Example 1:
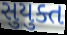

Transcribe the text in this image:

સુયુક્ત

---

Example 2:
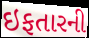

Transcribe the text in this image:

ઇફતારની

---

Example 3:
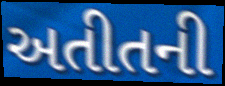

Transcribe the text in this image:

અતીતની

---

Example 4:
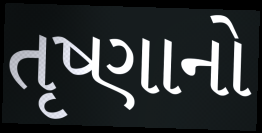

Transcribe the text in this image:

તૃષ્ણાનો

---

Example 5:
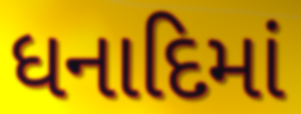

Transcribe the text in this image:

ધનાદિમાં